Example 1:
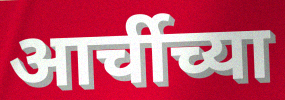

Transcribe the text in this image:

आर्चीच्या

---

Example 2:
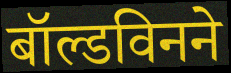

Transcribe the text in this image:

बॉल्डविनने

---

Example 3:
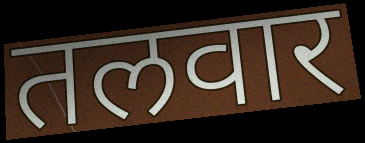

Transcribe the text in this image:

तलवार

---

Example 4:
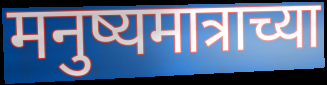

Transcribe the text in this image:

मनुष्यमात्राच्या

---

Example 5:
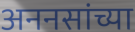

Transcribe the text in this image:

अननसांच्या